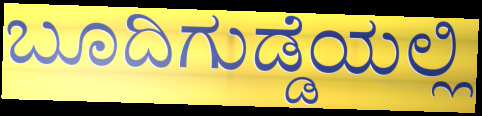
ಬೂದಿಗುಡ್ಡೆಯಲ್ಲಿ